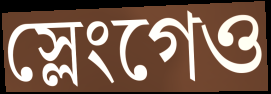
স্লেংগেও